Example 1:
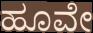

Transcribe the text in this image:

ಹೂವೇ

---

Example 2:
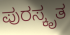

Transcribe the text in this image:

ಪುರಸ್ಕೃತ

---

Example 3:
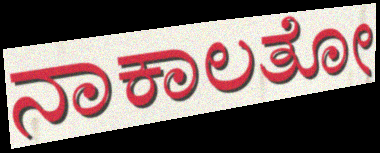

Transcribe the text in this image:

ನಾಕಾಲತೋ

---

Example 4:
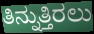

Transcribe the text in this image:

ತಿನ್ನುತ್ತಿರಲು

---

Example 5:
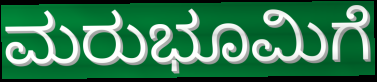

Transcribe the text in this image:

ಮರುಭೂಮಿಗೆ